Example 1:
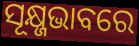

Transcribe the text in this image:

ସୂକ୍ଷ୍ଜଭାବରେ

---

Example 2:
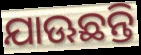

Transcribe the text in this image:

ଯାଊଛନ୍ତି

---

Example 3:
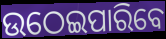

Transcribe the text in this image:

ଉଠେଇପାରିବେ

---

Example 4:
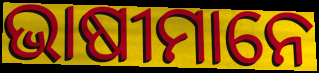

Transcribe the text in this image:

ଭାଷୀମାନେ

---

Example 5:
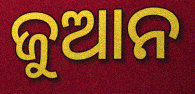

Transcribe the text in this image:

ଜୁଆନ